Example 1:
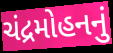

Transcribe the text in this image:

ચંદ્રમોહનનું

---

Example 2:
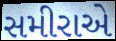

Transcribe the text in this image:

સમીરાએ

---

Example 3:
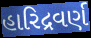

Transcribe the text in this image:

હારિદ્રવર્ણ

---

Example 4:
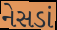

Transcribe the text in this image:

નેસડાં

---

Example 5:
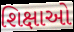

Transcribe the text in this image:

શિક્ષાઓ